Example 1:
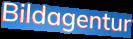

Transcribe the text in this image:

Bildagentur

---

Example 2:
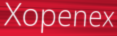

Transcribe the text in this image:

Xopenex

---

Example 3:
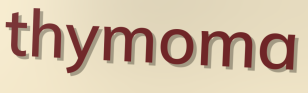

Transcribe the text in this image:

thymoma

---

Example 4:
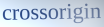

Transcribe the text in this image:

crossorigin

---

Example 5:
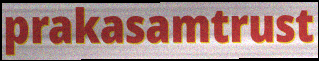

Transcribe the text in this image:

prakasamtrust